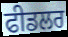
ਫੀਡਲਰ